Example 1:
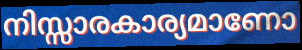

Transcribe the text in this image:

നിസ്സാരകാര്യമാണോ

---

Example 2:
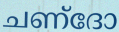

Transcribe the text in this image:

ചണ്ദോ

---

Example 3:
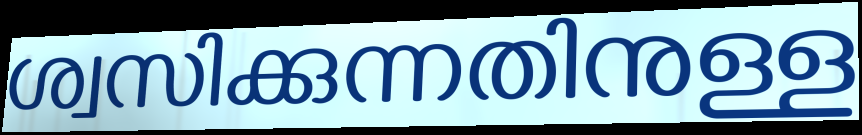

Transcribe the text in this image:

ശ്വസിക്കുന്നതിനുള്ള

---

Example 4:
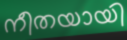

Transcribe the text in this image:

നീതയായി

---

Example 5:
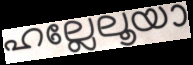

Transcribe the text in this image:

ഹല്ലേലൂയാ